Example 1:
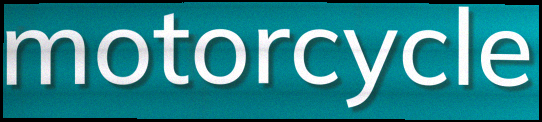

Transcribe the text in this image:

motorcycle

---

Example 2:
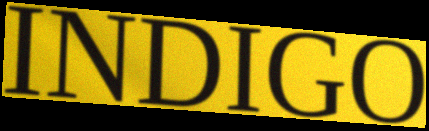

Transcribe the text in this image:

INDIGO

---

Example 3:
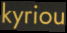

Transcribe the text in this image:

kyriou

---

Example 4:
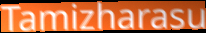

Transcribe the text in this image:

Tamizharasu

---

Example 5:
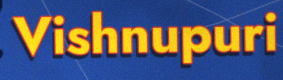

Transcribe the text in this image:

Vishnupuri